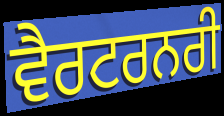
ਵੈਰਟਰਨਰੀ